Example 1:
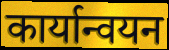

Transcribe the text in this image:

कार्यान्वयन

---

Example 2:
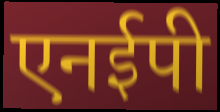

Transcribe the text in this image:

एनईपी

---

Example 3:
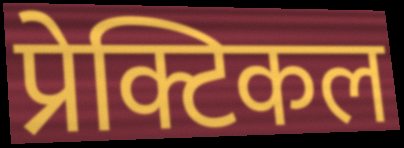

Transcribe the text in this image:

प्रेक्टिकल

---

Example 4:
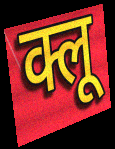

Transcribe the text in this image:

क्लू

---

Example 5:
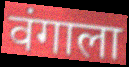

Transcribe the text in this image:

वंगाला